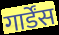
गार्डेंस